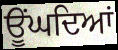
ਊਂਘਦਿਆਂ